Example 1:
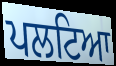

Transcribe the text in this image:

ਪਲਟਿਆ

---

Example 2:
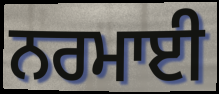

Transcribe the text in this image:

ਨਰਮਾਈ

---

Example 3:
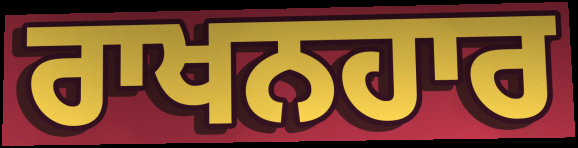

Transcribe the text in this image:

ਰਾਖਨਹਾਰ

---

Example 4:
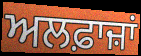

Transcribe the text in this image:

ਅਲਫ਼ਾਜ਼ਾਂ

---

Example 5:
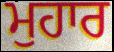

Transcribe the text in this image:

ਮੁਹਾਰ